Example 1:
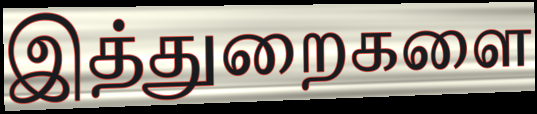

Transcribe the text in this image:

இத்துறைகளை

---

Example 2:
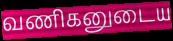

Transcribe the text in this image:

வணிகனுடைய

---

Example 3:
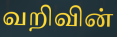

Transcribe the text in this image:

வறிவின்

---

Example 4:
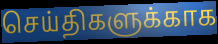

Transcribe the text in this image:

செய்திகளுக்காக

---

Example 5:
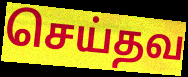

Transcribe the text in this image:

செய்தவ